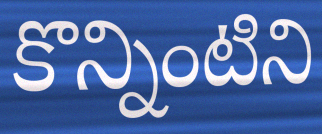
కొన్నింటిని